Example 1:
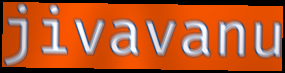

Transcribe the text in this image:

jivavanu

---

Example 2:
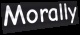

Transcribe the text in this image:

Morally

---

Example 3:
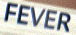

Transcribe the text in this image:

FEVER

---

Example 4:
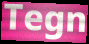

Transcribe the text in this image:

Tegn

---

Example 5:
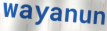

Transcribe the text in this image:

wayanun